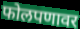
फोलपणावर